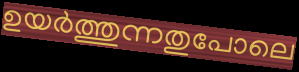
ഉയർത്തുന്നതുപോലെ